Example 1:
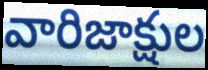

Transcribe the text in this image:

వారిజాక్షుల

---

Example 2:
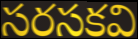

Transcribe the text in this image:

సరసకవి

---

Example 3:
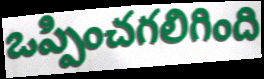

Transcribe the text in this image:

ఒప్పించగలిగింది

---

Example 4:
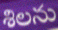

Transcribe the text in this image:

శిలను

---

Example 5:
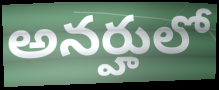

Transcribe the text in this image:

అనర్హులో